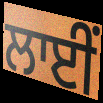
ਲਾਈਂ